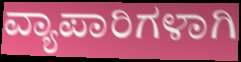
ವ್ಯಾಪಾರಿಗಳಾಗಿ